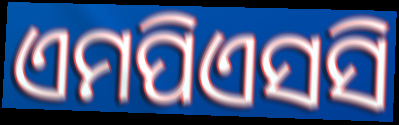
ଏମପିଏସସି